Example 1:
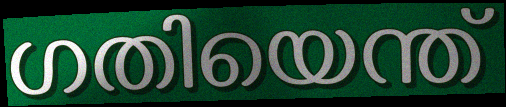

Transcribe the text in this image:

ഗതിയെന്ത്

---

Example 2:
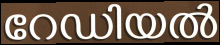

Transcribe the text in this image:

റേഡിയൽ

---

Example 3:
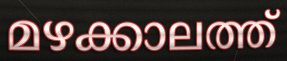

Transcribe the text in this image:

മഴക്കാലത്ത്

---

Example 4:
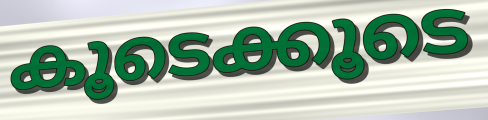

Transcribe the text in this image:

കൂടെക്കൂടെ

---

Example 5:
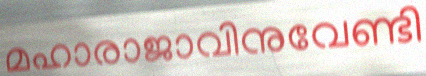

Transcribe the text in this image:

മഹാരാജാവിനുവേണ്ടി